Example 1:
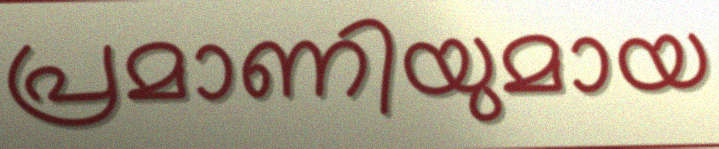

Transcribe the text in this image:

പ്രമാണിയുമായ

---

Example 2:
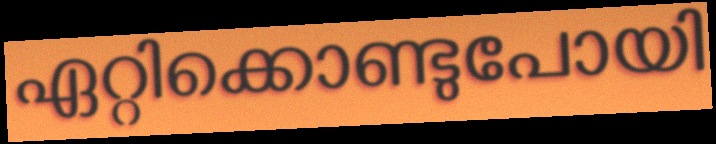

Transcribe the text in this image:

ഏറ്റിക്കൊണ്ടുപോയി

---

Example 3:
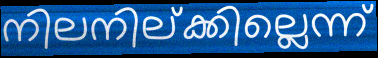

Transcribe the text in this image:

നിലനില്ക്കില്ലെന്ന്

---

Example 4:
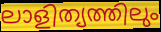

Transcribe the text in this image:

ലാളിത്യത്തിലും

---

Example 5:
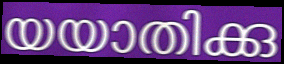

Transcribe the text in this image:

യയാതിക്കു